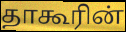
தாகூரின்